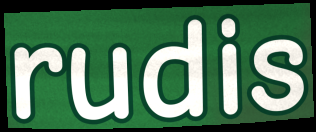
rudis